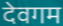
देवगम